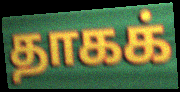
தாகக்